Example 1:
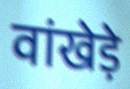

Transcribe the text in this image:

वांखेड़े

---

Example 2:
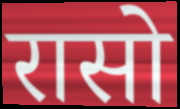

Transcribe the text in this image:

रासो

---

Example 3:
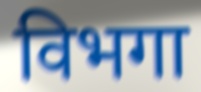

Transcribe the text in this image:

विभगा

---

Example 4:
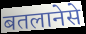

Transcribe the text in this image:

बतलानेसे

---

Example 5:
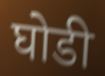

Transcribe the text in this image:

घोडी